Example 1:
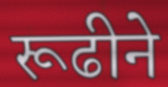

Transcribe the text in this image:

रूढीने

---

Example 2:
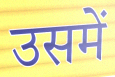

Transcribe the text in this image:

उसमें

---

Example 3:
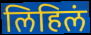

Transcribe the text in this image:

लिहिलं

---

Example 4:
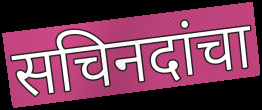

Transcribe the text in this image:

सचिनदांचा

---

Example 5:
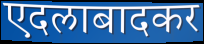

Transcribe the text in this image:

एदलाबादकर